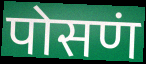
पोसणं